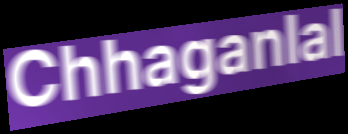
Chhaganlal